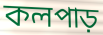
কলপাড়